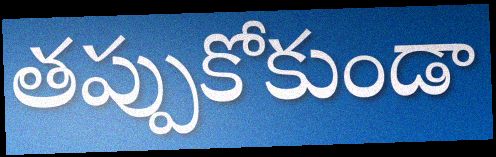
తప్పుకోకుండా